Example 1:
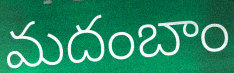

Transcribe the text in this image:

మదంబాం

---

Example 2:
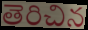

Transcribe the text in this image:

తెరిచిన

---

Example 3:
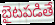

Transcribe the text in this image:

బైటపడితే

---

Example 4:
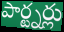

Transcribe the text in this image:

పార్ట్నర్లు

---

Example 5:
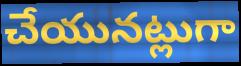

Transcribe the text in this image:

చేయునట్లుగా